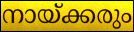
നായ്ക്കരും